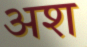
अश